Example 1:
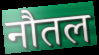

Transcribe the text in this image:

नौतल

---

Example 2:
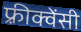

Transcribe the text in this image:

फ़्रीक्वेंसी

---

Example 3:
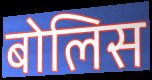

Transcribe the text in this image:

बोलिस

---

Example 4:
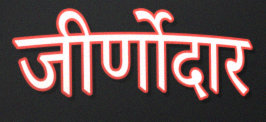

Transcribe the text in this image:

जीर्णोदार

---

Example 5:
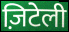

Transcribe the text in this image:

ज़िटेली